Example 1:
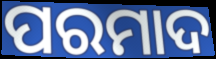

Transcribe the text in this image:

ପରମାଦ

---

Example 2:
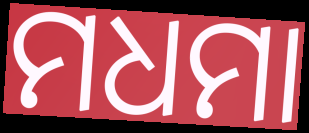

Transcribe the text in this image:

ମଧମା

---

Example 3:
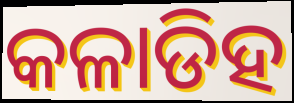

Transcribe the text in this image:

କଳାଡିହ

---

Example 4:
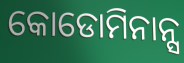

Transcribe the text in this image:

କୋଡୋମିନାନ୍ସ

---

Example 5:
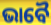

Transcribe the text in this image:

ଭାବୈ